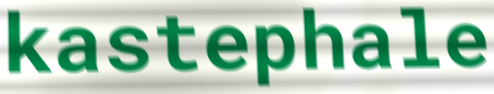
kastephale